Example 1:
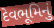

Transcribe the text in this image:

દેવભૂમિનું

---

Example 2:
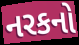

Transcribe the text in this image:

નરકનો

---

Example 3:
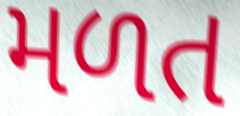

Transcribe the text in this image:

મળત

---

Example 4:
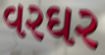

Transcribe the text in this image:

વરઘર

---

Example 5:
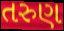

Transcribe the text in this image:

તરુણ